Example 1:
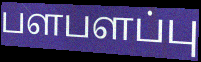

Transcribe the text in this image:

பளபளப்பு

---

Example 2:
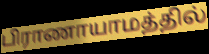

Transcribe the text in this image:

பிராணாயாமத்தில்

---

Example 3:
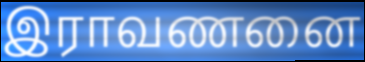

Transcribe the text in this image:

இராவணனை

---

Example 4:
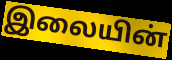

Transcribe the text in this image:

இலையின்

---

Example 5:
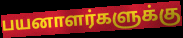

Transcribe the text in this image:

பயனாளர்களுக்கு